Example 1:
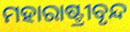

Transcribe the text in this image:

ମହାରାଷ୍ଟ୍ରୀବୃନ୍ଦ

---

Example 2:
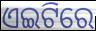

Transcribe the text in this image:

ଏଇଟିରେ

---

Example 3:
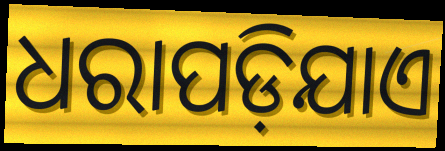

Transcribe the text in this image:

ଧରାପଡ଼ିଯାଏ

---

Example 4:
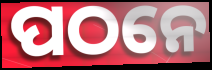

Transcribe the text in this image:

ପଠନେ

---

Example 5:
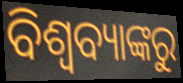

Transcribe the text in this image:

ବିଶ୍ୱବ୍ୟାଙ୍କରୁ